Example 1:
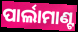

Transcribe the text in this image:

ପାର୍ଲାମାଣ୍ଟ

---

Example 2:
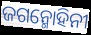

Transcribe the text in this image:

ଜଗନ୍ମୋହିନୀ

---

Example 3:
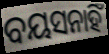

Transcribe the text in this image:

ବୟସନାହିଁ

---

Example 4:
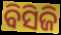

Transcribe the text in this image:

ବିସିଜି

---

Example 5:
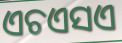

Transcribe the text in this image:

ଏଚଏସଏ